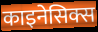
काइनेसिक्स